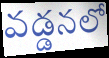
వడ్డనలో